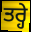
ਤਰ੍ਹੇ